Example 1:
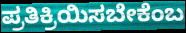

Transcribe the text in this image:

ಪ್ರತಿಕ್ರಿಯಿಸಬೇಕೆಂಬ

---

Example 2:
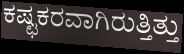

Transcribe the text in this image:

ಕಷ್ಟಕರವಾಗಿರುತ್ತಿತ್ತು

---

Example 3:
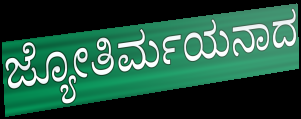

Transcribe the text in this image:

ಜ್ಯೋತಿರ್ಮಯನಾದ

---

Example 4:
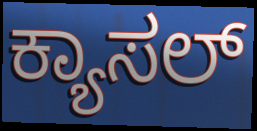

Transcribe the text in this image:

ಕ್ಯಾಸಲ್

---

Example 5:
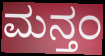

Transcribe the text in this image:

ಮನ್ತಂ